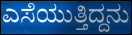
ಎಸೆಯುತ್ತಿದ್ದನು